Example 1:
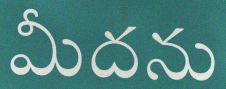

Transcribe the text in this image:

మీదను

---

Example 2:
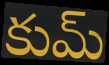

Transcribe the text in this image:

కుమ్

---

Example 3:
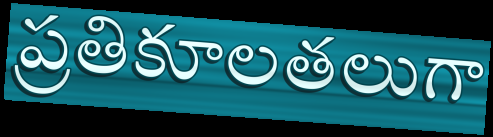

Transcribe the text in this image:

ప్రతికూలతలుగా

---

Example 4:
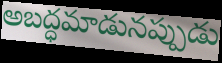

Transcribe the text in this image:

అబద్ధమాడునప్పుడు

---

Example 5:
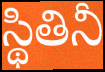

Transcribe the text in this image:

స్థితినీ